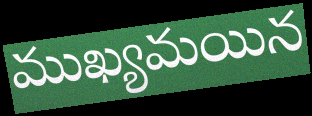
ముఖ్యమయిన